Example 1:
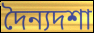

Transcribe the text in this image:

দৈন্যদশা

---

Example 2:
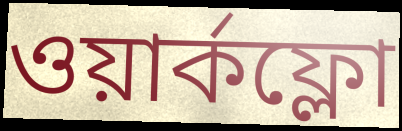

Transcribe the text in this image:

ওয়ার্কফ্লো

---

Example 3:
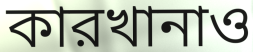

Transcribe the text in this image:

কারখানাও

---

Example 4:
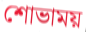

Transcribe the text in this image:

শোভাময়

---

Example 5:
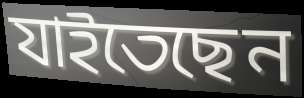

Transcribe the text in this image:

যাইতেছেন